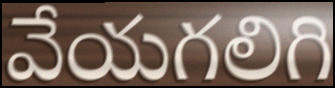
వేయగలిగి